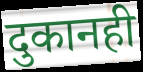
दुकानही